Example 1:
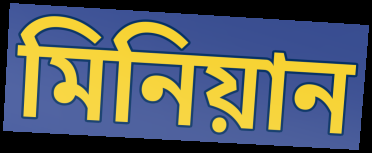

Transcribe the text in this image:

মিনিয়ান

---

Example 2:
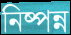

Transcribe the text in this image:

নিষ্পন্ন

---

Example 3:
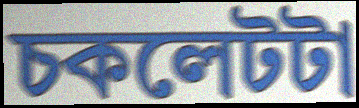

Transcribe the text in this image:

চকলেটটা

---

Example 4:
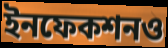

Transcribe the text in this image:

ইনফেকশনও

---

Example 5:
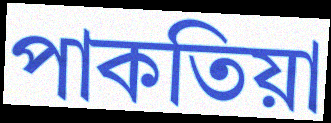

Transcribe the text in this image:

পাকতিয়া